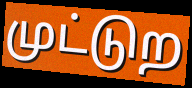
முட்டுற